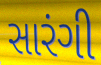
સારંગી